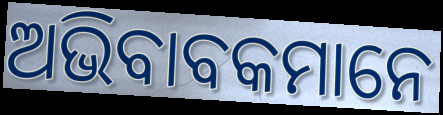
ଅଭିବାବକମାନେ